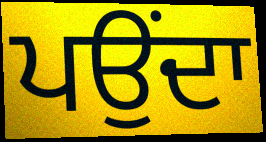
ਪਉਂਦਾ